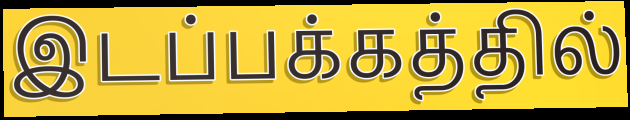
இடப்பக்கத்தில்